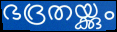
ഭദ്രതയ്ക്കും